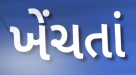
ખેંચતાં